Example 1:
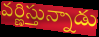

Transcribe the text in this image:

వర్ణిస్తున్నాడు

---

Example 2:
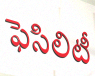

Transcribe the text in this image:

ఫెసిలిటీ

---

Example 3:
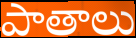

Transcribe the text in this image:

పాతాలు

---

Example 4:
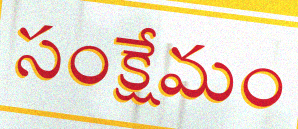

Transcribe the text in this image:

సంక్షేమం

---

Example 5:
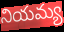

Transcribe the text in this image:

నియమ్య